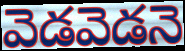
వెడవెడనె